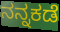
ನನ್ನಕಡೆ